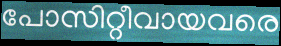
പോസിറ്റീവായവരെ